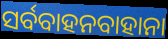
ସର୍ବବାହନବାହାନା